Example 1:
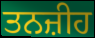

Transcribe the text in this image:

ਤਨਜ਼ੀਹ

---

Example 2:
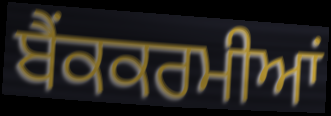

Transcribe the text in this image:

ਬੈਂਕਕਰਮੀਆਂ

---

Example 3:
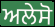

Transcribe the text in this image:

ਅਲੇਸੋ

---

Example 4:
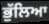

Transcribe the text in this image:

ਭੁੱਲਿਆ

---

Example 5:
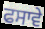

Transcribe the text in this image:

ਫਸਾਵੇ